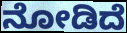
ನೋಡಿದೆ